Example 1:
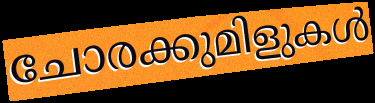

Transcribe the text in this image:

ചോരക്കുമിളുകൾ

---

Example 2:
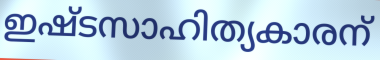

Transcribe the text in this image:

ഇഷ്ടസാഹിത്യകാരന്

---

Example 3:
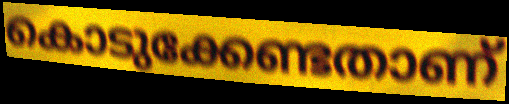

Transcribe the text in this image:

കൊടുക്കേണ്ടതാണ്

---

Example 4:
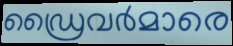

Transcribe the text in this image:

ഡ്രൈവർമാരെ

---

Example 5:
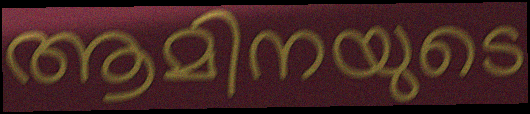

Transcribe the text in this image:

ആമിനയുടെ